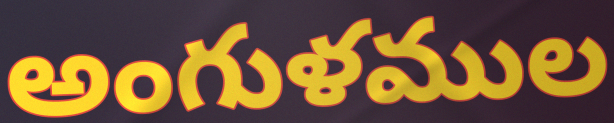
అంగుళముల